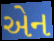
એન